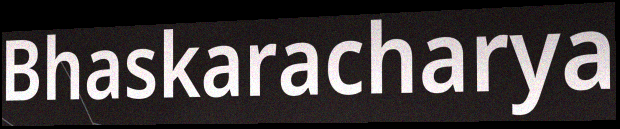
Bhaskaracharya